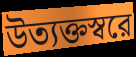
উত্যক্তস্বরে